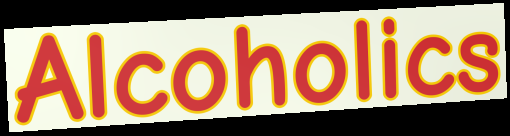
Alcoholics